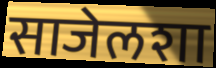
साजेलशा